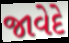
જાવેદે